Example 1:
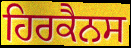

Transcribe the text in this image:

ਹਿਰਕੈਨਸ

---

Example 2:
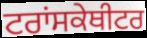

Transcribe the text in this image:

ਟਰਾਂਸਕੇਥੀਟਰ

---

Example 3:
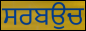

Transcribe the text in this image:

ਸਰਬਉਚ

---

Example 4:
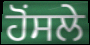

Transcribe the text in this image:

ਹੋਂਸਲੇ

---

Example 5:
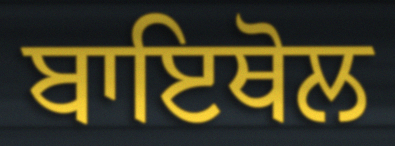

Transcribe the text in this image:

ਬਾਇਥੋਲ